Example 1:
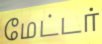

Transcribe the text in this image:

மேட்டர்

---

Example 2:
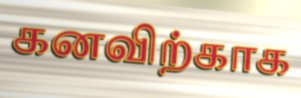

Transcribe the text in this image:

கனவிற்காக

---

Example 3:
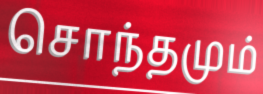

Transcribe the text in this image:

சொந்தமும்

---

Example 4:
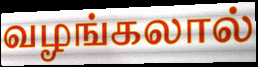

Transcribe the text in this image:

வழங்கலால்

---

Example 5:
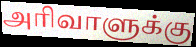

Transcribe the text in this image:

அரிவாளுக்கு